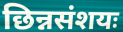
छिन्नसंशयः